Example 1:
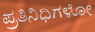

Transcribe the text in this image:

ಪ್ರತಿನಿಧಿಗಳೋ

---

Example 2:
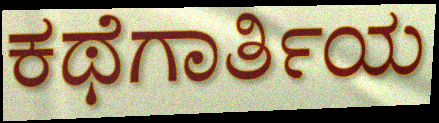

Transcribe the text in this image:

ಕಥೆಗಾರ್ತಿಯ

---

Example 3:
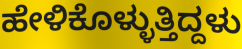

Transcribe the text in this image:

ಹೇಳಿಕೊಳ್ಳುತ್ತಿದ್ದಳು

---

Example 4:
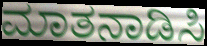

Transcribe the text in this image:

ಮಾತನಾಡಿಸಿ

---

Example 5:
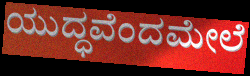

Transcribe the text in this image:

ಯುದ್ಧವೆಂದಮೇಲೆ